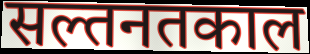
सल्तनतकाल